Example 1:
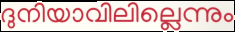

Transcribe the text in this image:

ദുനിയാവിലില്ലെന്നും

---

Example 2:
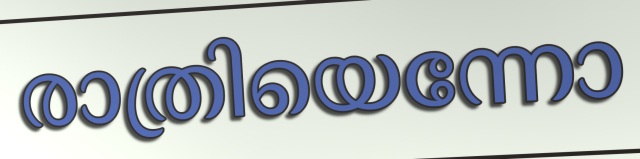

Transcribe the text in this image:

രാത്രിയെന്നോ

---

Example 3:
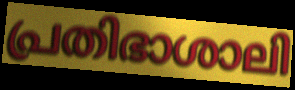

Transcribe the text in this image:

പ്രതിഭാശാലി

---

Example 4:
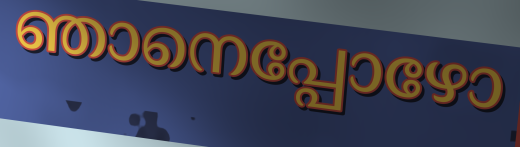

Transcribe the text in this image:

ഞാനെപ്പോഴോ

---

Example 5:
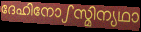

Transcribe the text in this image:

ദേഹിനോഽസ്മിന്യഥാ